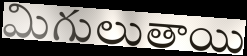
మిగులుతాయి